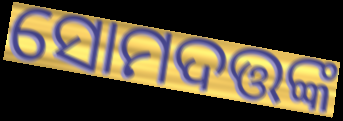
ସୋମଦତ୍ତଙ୍କ